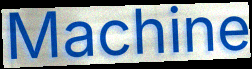
Machine